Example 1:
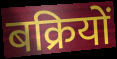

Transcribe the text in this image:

बक्रियों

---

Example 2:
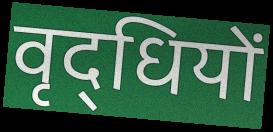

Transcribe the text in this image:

वृद्धियों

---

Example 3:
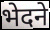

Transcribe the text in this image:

भेदने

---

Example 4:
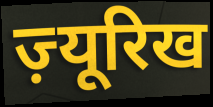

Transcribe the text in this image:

ज़्यूरिख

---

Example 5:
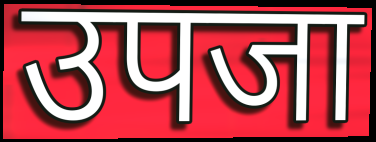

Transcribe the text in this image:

उपजा